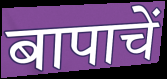
बापाचें